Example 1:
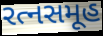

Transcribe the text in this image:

રત્નસમૂહ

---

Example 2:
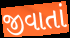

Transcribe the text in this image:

જીવાતાં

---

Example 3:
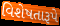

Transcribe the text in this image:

વિશેષતારૂપે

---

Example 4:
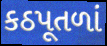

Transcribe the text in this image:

કઠપૂતળાં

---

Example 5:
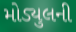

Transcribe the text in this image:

મોડ્યુલની